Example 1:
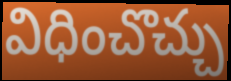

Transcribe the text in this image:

విధించొచ్చు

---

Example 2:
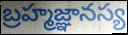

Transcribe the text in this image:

బ్రహ్మజ్ఞానస్య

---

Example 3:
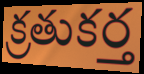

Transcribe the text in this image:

క్రతుకర్త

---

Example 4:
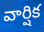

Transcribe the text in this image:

వార్షిక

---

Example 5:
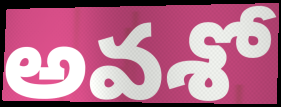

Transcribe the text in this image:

అవశో